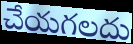
చేయగలదు